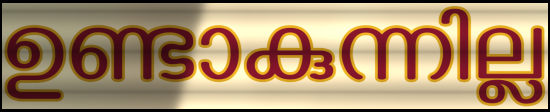
ഉണ്ടാകുന്നില്ല